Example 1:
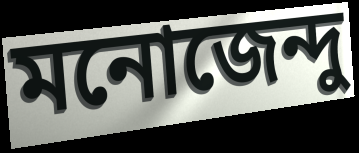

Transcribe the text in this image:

মনোজেন্দু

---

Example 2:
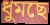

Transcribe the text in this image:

ধুমছে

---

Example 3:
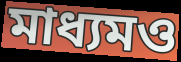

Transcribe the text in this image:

মাধ্যমও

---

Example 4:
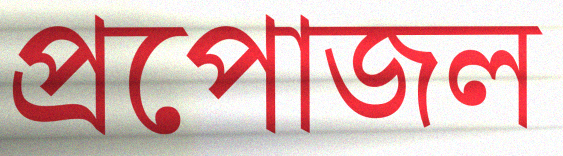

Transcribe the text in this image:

প্রপোজল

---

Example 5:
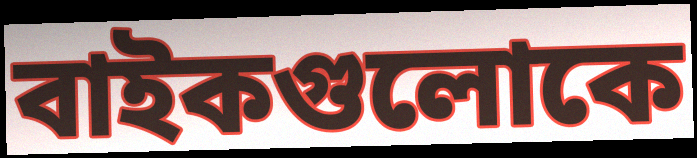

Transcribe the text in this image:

বাইকগুলোকে